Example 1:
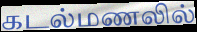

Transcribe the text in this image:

கடல்மணலில்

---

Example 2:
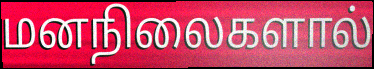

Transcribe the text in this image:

மனநிலைகளால்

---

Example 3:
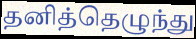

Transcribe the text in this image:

தனித்தெழுந்து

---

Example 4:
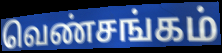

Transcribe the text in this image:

வெண்சங்கம்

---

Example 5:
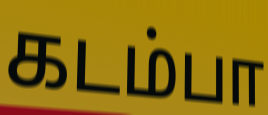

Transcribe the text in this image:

கடம்பா